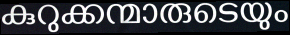
കുറുക്കന്മാരുടെയും